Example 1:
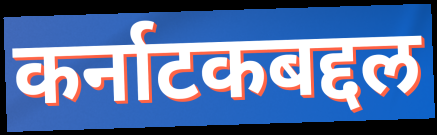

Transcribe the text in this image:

कर्नाटकबद्दल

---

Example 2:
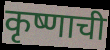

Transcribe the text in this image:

कृष्णाची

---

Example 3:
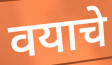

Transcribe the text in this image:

वयाचे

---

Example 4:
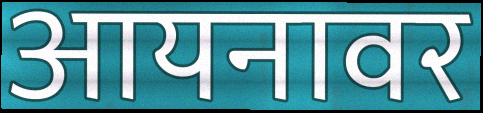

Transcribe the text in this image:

आयनावर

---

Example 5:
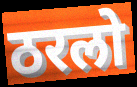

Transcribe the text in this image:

ठरलो